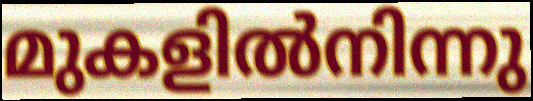
മുകളിൽനിന്നു